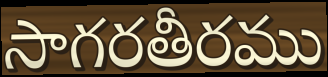
సాగరతీరము